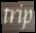
trip